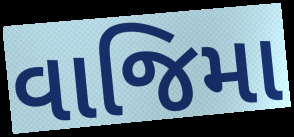
વાજિમા